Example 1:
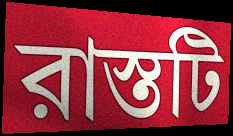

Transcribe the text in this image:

রাস্তটি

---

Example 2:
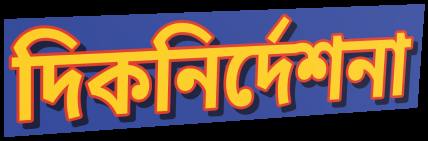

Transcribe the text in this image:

দিকনির্দেশনা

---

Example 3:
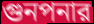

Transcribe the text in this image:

গুনপনার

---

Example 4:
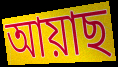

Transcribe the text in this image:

আয়াছ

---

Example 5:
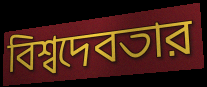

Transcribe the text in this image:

বিশ্বদেবতার